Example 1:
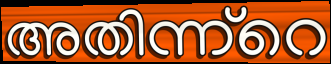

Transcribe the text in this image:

അതിന്ന്റെ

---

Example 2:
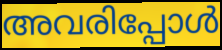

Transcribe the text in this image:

അവരിപ്പോൾ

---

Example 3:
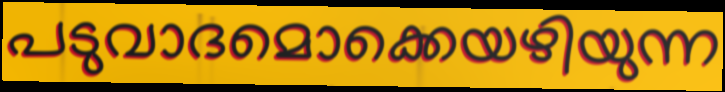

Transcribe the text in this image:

പടുവാദമൊക്കെയഴിയുന്ന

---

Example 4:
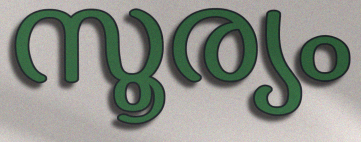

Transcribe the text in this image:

സൂര്യം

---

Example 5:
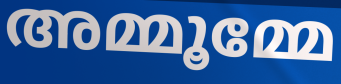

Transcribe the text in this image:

അമ്മൂമ്മേ